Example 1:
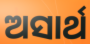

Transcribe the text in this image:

ଅସାର୍ଥ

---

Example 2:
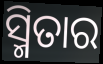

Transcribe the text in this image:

ସ୍ମିତାର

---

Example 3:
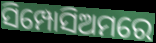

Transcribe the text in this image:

ସିମ୍ପୋସିଅମରେ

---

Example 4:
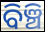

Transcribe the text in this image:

ବିଞ୍ଚି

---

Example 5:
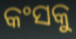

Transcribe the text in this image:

କଂସକୁ